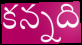
కన్నది